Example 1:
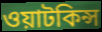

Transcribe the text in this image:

ওয়াটকিন্স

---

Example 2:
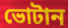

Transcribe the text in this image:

ভোটান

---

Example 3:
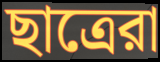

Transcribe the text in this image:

ছাত্রেরা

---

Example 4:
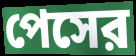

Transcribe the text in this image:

পেসের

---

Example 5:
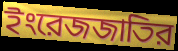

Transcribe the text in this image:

ইংরেজজাতির